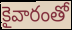
కైవారంతో